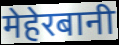
मेहेरबानी